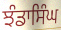
ਝੰਡਾਸਿੰਘ